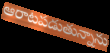
ఆరాటపడుతున్నాను